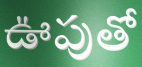
ఊపుతో